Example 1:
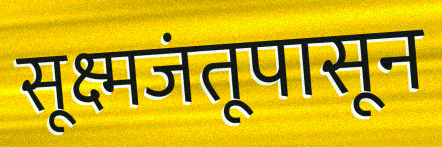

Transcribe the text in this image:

सूक्ष्मजंतूपासून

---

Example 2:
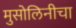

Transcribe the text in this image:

मुसोलिनीचा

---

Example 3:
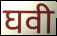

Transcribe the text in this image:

घवी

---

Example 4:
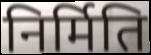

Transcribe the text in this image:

निर्मिति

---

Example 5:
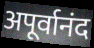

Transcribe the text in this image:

अपूर्वानंद